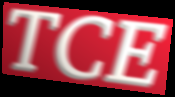
TCE